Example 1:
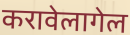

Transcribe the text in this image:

करावेलागेल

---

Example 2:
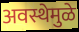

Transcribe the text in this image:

अवस्थेमुळे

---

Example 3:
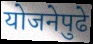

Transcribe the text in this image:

योजनेपुढे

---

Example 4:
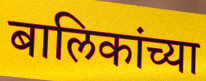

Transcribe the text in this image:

बालिकांच्या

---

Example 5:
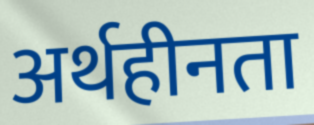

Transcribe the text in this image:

अर्थहीनता